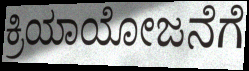
ಕ್ರಿಯಾಯೋಜನೆಗೆ